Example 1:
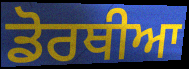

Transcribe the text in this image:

ਡੋਰਥੀਆ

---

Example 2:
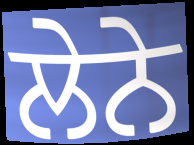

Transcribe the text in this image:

ਲੇਨੇ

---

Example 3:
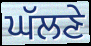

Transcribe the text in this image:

ਘੱਲਣੇ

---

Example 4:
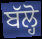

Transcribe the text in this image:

ਬੱਲ੍ਹੋ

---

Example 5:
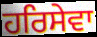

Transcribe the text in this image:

ਹਰਿਸੇਵਾ